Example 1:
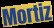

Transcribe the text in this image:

Mortiz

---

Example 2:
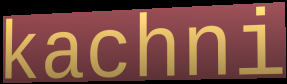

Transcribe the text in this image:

kachni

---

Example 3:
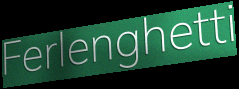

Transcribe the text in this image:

Ferlenghetti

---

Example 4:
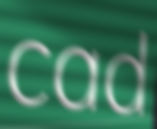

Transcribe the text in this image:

cad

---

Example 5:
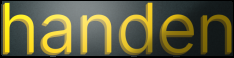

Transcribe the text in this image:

handen